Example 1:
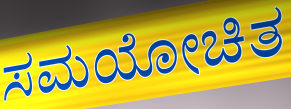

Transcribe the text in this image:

ಸಮಯೋಚಿತ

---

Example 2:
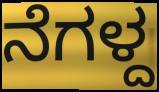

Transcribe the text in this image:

ನೆಗಳ್ದ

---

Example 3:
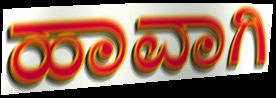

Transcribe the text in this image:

ಹಾವಾಗಿ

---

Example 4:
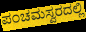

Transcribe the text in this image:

ಪಂಚಮಸ್ವರದಲ್ಲಿ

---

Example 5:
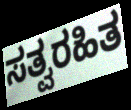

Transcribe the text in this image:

ಸತ್ವರಹಿತ